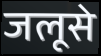
जलूसे